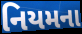
નિયમના